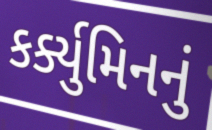
કર્ક્યુમિનનું